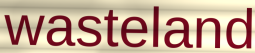
wasteland